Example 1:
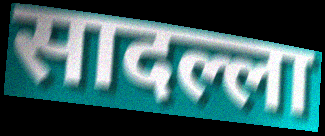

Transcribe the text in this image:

सादल्ला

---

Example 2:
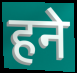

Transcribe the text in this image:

हने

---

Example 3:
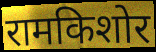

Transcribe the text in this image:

रामकिशोर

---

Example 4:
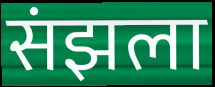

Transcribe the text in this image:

संझला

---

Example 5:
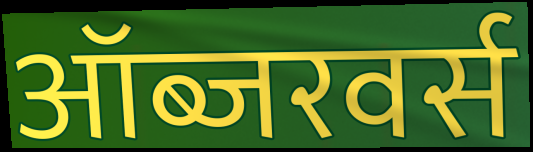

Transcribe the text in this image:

ऑब्जरवर्स